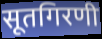
सूतगिरणी